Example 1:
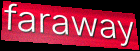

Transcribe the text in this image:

faraway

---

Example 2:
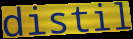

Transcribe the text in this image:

distil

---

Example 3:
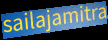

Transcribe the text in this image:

sailajamitra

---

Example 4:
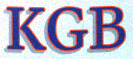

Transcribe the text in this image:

KGB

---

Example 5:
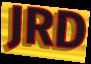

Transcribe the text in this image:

JRD